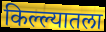
किल्ल्यातला